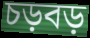
চড়বড়